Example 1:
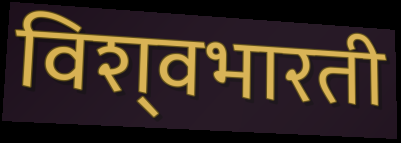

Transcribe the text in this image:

विश्वभारती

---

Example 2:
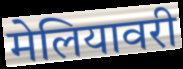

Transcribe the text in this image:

मेलियावरी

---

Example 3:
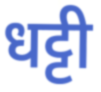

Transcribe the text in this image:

धट्टी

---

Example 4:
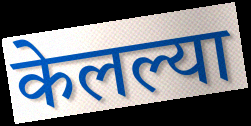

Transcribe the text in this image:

केलल्या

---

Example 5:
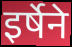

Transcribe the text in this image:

इर्षेने